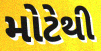
મોટેથી